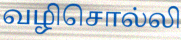
வழிசொல்லி